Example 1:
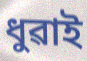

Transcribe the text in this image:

ধুৱাই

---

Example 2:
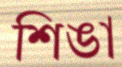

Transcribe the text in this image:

শিঙা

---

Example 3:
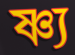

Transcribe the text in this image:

ষ্ণ্য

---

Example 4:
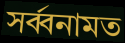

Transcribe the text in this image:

সৰ্ব্বনামত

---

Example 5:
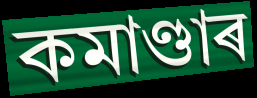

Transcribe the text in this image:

কমাণ্ডাৰ